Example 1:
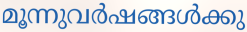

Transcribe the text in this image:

മൂന്നുവർഷങ്ങൾക്കു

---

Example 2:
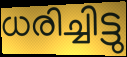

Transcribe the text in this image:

ധരിച്ചിട്ടു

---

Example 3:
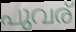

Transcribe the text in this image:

പുവര്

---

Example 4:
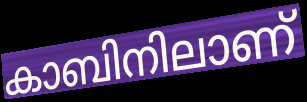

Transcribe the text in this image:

കാബിനിലാണ്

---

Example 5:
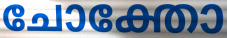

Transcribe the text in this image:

ചോക്തോ